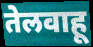
तेलवाहू